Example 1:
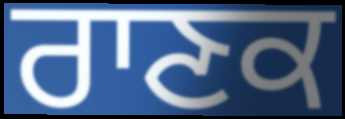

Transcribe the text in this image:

ਰਾਣਕ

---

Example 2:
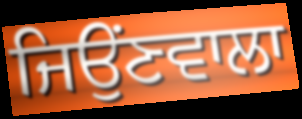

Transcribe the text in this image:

ਜਿਉਂਣਵਾਲਾ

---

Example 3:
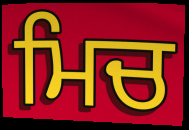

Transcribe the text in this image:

ਮਿਚ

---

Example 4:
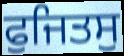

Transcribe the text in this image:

ਫੁਜਿਤਸੁ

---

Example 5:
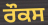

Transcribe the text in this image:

ਰੌਕਸ